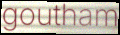
goutham